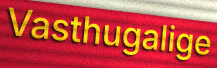
Vasthugalige